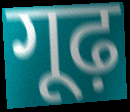
गूढ़